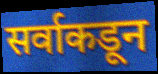
सर्वाकडून